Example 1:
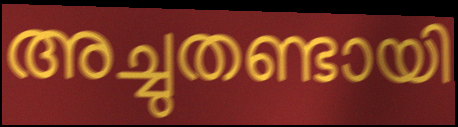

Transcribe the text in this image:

അച്ചുതണ്ടായി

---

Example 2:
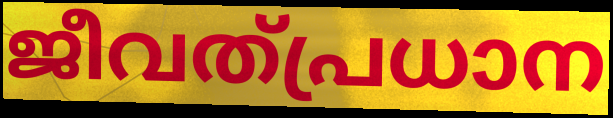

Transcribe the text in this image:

ജീവത്പ്രധാന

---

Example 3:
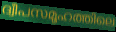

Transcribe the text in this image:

ദ്വീപസമൂഹത്തിലെ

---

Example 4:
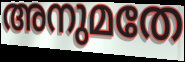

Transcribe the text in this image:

അനുമതേ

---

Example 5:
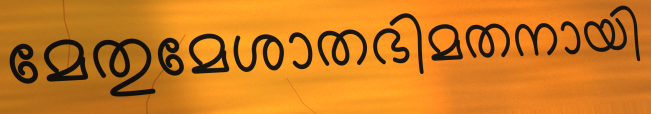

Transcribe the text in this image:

മേതുമേശാതഭിമതനായി